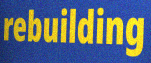
rebuilding